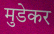
मुडेकर